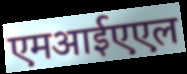
एमआईएएल